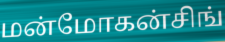
மன்மோகன்சிங்